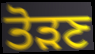
ਤੋੜਣ